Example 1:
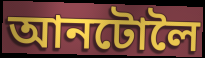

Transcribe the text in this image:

আনটোলৈ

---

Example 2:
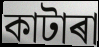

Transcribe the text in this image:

কাটাৰা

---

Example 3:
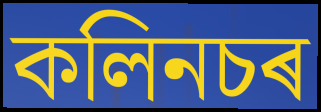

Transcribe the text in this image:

কলিনচৰ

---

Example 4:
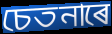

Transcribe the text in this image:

চেতনাৰে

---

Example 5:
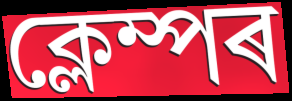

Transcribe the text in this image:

ক্লেম্পৰ